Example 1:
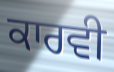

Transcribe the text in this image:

ਕਾਰਵੀ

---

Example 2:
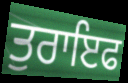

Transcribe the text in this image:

ਤੁਰਾਇਫ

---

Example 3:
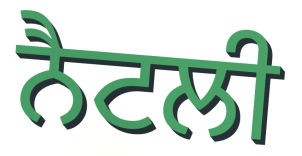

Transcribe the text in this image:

ਨੈਟਲੀ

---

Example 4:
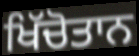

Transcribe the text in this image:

ਖਿੱਚੋਤਾਨ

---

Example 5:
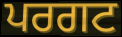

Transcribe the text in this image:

ਪਰਗਟ